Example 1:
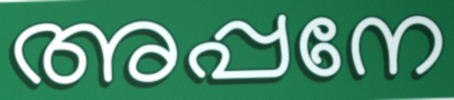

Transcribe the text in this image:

അപ്പനേ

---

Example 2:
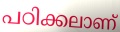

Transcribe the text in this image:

പഠിക്കലാണ്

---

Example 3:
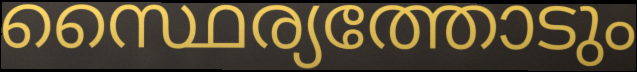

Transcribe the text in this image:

സ്ഥൈര്യത്തോടും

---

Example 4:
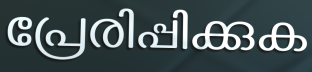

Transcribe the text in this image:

പ്രേരിപ്പിക്കുക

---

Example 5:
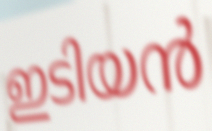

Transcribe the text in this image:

ഇടിയൻ